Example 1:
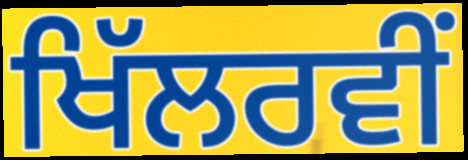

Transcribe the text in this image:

ਖਿੱਲਰਵੀਂ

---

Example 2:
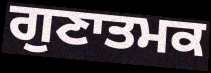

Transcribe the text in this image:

ਗੁਣਾਤਮਕ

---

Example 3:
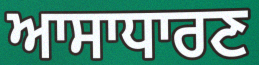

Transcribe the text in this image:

ਆਸਾਧਾਰਣ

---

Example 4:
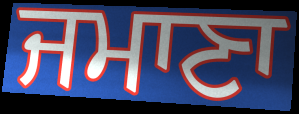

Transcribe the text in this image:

ਜਮਾਣਾ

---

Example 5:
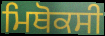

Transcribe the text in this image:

ਮਿਥੋਕਸੀ